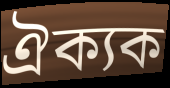
ঐক্যক